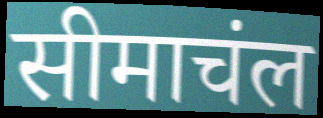
सीमाचंल